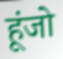
हूंजो